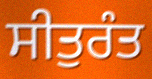
ਸੀਤੁਰੰਤ